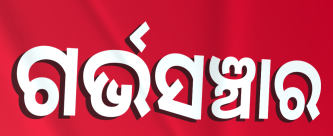
ଗର୍ଭସଞ୍ଚାର